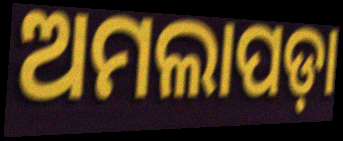
ଅମଲାପଡ଼ା